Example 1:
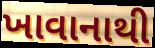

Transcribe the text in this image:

ખાવાનાથી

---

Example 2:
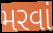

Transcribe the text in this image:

મરવાં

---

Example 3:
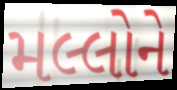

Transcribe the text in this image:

મલ્લોને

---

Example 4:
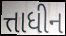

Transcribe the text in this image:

ત્તાધીન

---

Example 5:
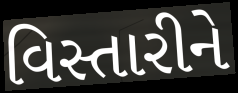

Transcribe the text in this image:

વિસ્તારીને